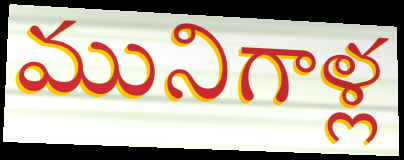
మునిగాళ్ల